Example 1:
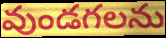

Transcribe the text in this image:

వుండగలను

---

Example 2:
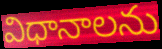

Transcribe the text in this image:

విధానాలను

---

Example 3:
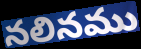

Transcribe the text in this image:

నలినము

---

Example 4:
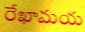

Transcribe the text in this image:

రేఖామయ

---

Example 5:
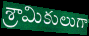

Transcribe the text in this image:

శ్రామికులుగా